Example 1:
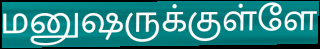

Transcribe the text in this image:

மனுஷருக்குள்ளே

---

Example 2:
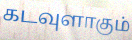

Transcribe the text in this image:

கடவுளாகும்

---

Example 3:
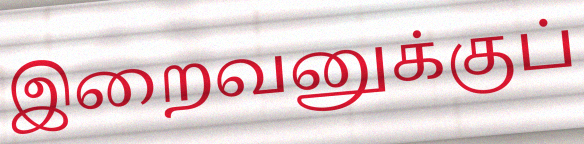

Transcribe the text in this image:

இறைவனுக்குப்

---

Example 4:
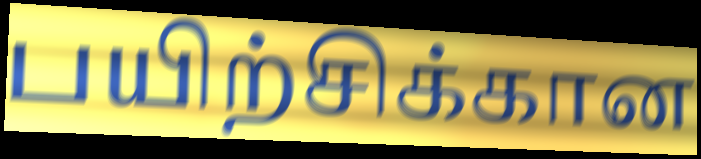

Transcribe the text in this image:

பயிற்சிக்கான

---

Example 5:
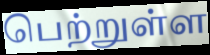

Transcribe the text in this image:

பெற்றுள்ள